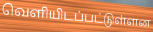
வெளியிடப்பட்டுள்ளன